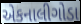
એકનાલીગોડા